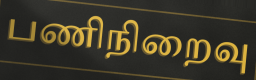
பணிநிறைவு